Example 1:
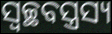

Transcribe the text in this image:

ସ୍ଵଚ୍ଛବସ୍ତ୍ରସ୍ୟ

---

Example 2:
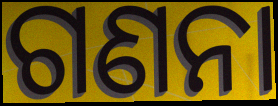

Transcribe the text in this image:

ଗଣନା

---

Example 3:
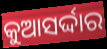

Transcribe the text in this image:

କୁଆସର୍ଦ୍ଦାର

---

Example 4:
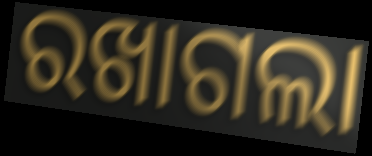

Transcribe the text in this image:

ରଖାଗଲା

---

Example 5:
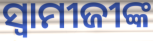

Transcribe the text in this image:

ସ୍ୱାମୀଜୀଙ୍କ